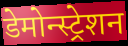
डेमोन्स्ट्रेशन